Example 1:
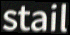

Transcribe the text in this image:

stail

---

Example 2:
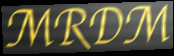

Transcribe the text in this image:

MRDM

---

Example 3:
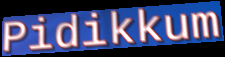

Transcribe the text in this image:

Pidikkum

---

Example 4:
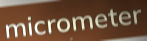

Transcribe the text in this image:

micrometer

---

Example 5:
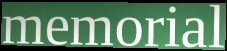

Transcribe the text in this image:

memorial